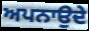
ਅਪਨਾਉਦੇ